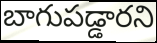
బాగుపడ్డారని